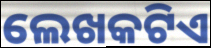
ଲେଖକଟିଏ